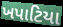
ખપાટિયા